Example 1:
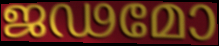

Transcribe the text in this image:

ജഢമോ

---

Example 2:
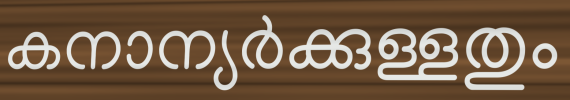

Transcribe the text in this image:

കനാന്യർക്കുള്ളതും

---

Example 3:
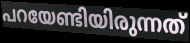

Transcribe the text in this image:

പറയേണ്ടിയിരുന്നത്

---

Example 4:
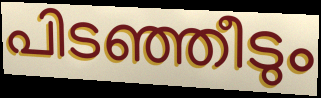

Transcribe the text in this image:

പിടഞ്ഞീടും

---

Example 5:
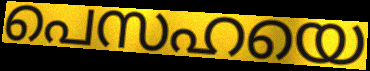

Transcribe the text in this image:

പെസഹയെ